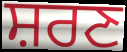
ਸ਼ਰਣ